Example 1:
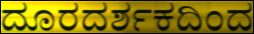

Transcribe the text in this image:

ದೂರದರ್ಶಕದಿಂದ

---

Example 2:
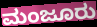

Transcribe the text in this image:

ಮಂಜೂರು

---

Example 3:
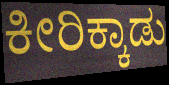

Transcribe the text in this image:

ಕೀರಿಕ್ಕಾಡು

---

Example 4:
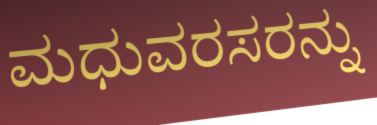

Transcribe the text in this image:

ಮಧುವರಸರನ್ನು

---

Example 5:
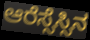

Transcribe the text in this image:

ಆರೆಸ್ಸೆಸ್ಸಿನ